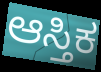
ಆಸ್ತಿಕ